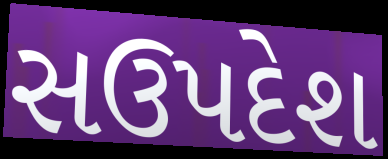
સઉપદેશ